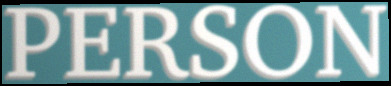
PERSON